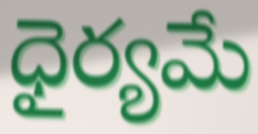
ధైర్యమే